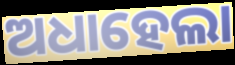
ଅଧାହେଲା